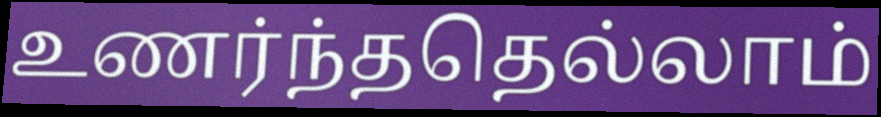
உணர்ந்ததெல்லாம்